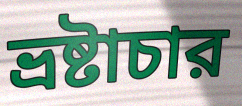
ভ্রষ্টাচার